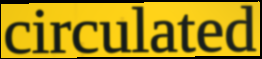
circulated